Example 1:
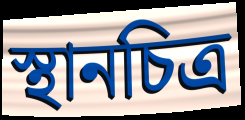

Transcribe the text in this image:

স্থানচিত্র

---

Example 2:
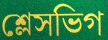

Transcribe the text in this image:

শ্লেসভিগ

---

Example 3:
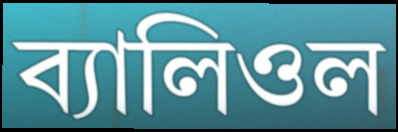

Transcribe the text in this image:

ব্যালিওল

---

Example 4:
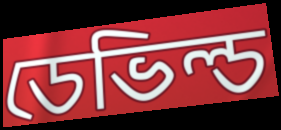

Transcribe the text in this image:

ডেভিল্ড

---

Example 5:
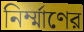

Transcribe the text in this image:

নির্ম্মাণের